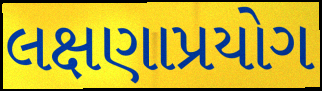
લક્ષણાપ્રયોગ